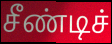
சீண்டிச்